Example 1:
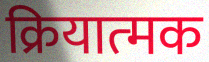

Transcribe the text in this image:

क्रियात्‍मक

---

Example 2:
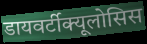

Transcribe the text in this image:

डायवर्टीक्यूलोसिस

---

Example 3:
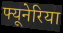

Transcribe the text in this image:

फ्यूनेरिया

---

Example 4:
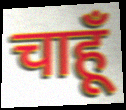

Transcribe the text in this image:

चाहूँ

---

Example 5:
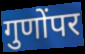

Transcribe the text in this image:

गुणोंपर